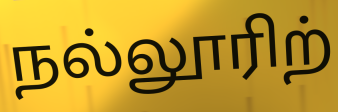
நல்லூரிற்